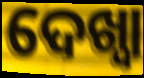
ଦେଖ୍ବା